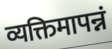
व्यक्तिमापन्नं